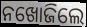
ନଖୋଜିଲେ